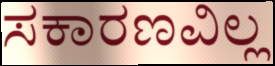
ಸಕಾರಣವಿಲ್ಲ